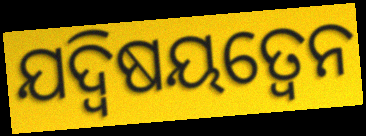
ଯଦ୍ଵିଷୟତ୍ଵେନ